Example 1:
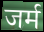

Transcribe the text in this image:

जर्म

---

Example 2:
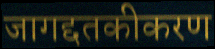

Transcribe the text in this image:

जागद्दतकीकरण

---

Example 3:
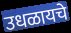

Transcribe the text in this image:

उधळायचे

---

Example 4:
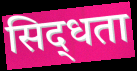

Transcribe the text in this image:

सिद्‌धता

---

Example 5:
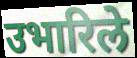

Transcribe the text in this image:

उभारिले